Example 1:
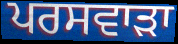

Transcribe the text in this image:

ਪਰਸਵਾੜਾ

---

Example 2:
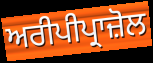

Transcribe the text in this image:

ਅਰੀਪੀਪ੍ਰਾਜ਼ੋਲ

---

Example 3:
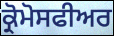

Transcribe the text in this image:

ਕ੍ਰੋਮੋਸਫੀਅਰ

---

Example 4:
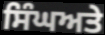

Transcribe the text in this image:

ਸਿੰਘਅਤੇ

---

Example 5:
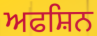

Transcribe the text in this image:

ਅਫਸ਼ਿਨ